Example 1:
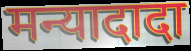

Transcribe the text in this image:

मन्यादादा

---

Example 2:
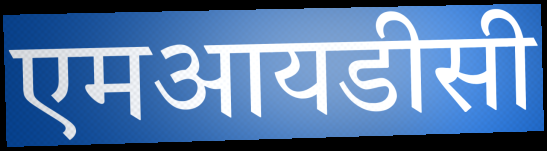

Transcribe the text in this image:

एमआयडीसी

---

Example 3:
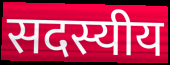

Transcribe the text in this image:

सदस्यीय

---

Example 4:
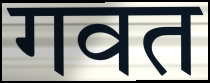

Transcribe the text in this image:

गवत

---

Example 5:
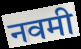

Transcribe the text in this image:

नवमी